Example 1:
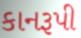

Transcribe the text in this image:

કાનરૂપી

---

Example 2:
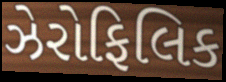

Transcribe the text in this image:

ઝેરોફિલિક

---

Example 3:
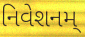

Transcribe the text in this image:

નિવેશનમ્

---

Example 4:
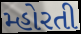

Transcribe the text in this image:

મ્હોરતી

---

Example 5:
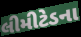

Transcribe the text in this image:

લીમીટેડના